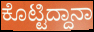
ಕೊಟ್ಟಿದ್ದಾನಾ